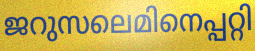
ജറുസലെമിനെപ്പറ്റി